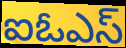
ఐఓఎస్